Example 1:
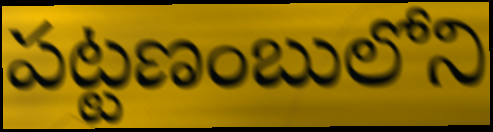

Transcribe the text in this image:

పట్టణంబులోని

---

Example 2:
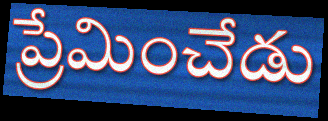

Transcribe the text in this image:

ప్రేమించేడు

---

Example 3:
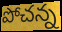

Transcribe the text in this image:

పోచన్న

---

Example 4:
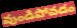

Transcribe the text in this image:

వుండిపోవడం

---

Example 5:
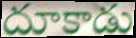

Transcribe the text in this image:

దూకాడు